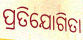
ପ୍ରତିଯୋଗିତା